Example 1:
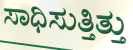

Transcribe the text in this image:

ಸಾಧಿಸುತ್ತಿತ್ತು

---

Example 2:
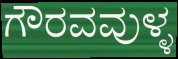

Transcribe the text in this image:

ಗೌರವವುಳ್ಳ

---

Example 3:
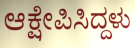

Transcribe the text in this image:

ಆಕ್ಷೇಪಿಸಿದ್ದಳು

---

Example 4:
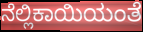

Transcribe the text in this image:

ನೆಲ್ಲಿಕಾಯಿಯಂತೆ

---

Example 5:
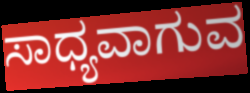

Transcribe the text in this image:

ಸಾಧ್ಯವಾಗುವ